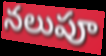
నలుపూ